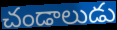
చండాలుడు